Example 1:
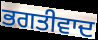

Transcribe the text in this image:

ਭਗਤੀਵਾਦ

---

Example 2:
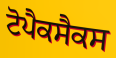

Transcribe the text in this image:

ਟੋਪੈਕਸੈਕਸ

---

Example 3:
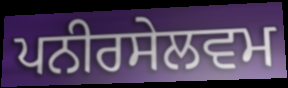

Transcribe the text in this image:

ਪਨੀਰਸੇਲਵਮ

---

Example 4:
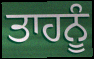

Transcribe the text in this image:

ਤਾਹਨੂੰ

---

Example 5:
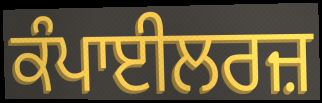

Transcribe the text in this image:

ਕੰਪਾਈਲਰਜ਼